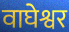
वाघेश्वर